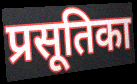
प्रसूतिका